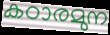
കഠാരമുന